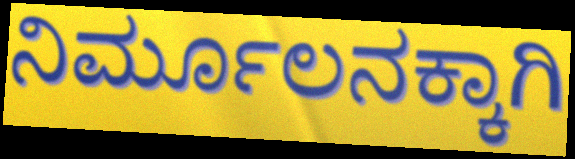
ನಿರ್ಮೂಲನಕ್ಕಾಗಿ